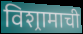
विश्रामाची